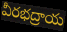
వీరభద్రాయ